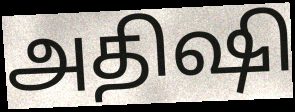
அதிஷி